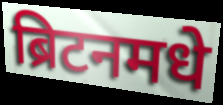
ब्रिटनमधे